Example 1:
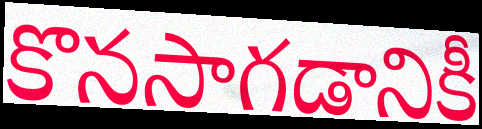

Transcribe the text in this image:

కొనసాగడానికీ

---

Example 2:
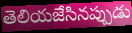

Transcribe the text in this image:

తెలియజేసినప్పుడు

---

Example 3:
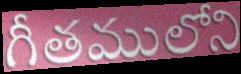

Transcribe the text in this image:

గీతములోని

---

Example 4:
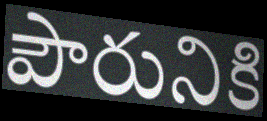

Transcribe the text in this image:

పౌరునికి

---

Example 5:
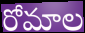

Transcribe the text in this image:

రోమాల